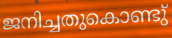
ജനിച്ചതുകൊണ്ടു്